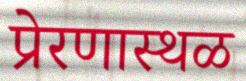
प्रेरणास्थळ